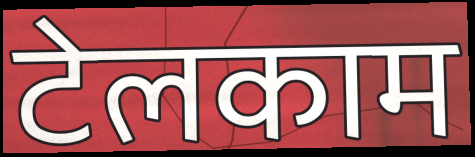
टेलकाम